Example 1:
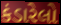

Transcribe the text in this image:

કંડારેલો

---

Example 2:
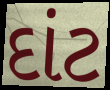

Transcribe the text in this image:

દાંટ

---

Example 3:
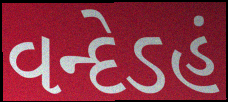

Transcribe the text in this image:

વન્દેઽહં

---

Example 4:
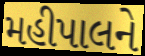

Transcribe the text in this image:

મહીપાલને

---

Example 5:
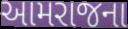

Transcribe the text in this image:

આમરાજના